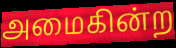
அமைகின்ற